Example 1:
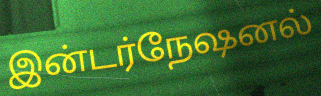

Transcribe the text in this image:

இன்டர்நேஷனல்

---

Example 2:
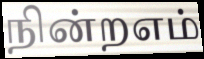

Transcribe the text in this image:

நின்றஎம்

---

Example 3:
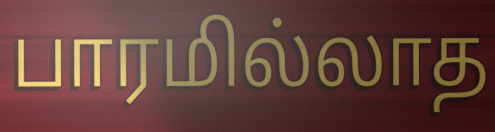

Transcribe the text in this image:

பாரமில்லாத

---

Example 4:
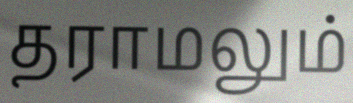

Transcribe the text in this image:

தராமலும்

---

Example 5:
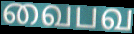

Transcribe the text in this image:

வைபவ